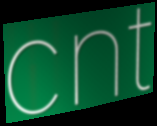
cnt